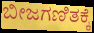
ಬೀಜಗಣಿತಕ್ಕೆ